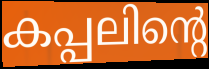
കപ്പലിന്റെ